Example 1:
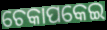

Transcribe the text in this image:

ଚେକାପକେଇ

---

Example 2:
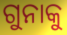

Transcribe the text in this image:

ଗୁନାକୁ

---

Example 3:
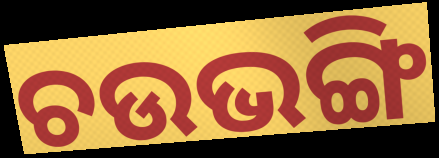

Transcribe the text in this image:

ଚଉଭଙ୍ଗି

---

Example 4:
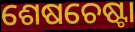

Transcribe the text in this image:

ଶେଷଚେଷ୍ଟା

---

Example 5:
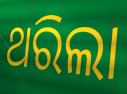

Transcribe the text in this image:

ଥରିଲା